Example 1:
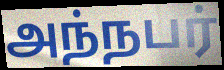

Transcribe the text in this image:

அந்நபர்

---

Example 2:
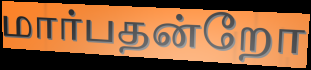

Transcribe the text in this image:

மார்பதன்றோ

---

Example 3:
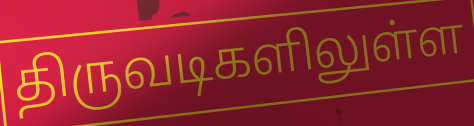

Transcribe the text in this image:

திருவடிகளிலுள்ள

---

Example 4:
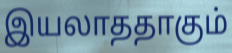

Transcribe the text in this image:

இயலாததாகும்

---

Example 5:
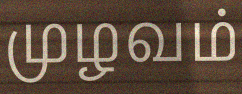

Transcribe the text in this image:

முழவம்